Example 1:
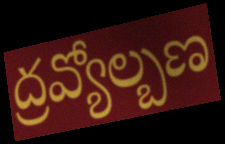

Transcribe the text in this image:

ద్రవ్యోల్బణ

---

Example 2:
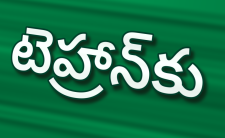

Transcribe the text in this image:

టెహ్రాన్‌కు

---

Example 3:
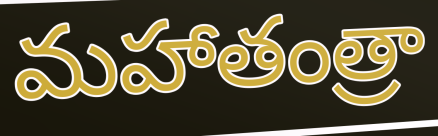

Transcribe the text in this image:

మహాతంత్రా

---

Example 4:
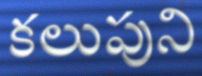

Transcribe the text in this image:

కలుపుని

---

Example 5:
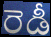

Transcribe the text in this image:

రెడీ